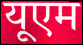
यूएम